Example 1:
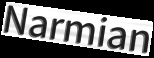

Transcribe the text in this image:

Narmian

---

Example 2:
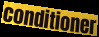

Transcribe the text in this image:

conditioner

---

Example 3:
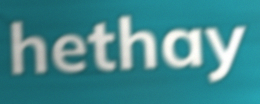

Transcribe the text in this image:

hethay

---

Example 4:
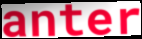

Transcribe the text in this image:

anter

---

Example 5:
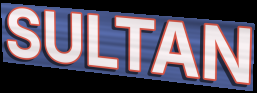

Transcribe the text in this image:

SULTAN